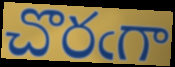
చొరఁగా